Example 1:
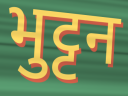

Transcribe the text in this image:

भुट्टन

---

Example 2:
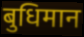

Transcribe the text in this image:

बुधिमान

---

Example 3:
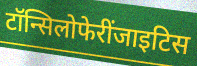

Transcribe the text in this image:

टॉन्सिलोफेरींजाइटिस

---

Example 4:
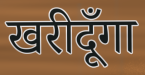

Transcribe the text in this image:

खरीदूँगा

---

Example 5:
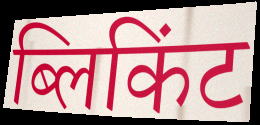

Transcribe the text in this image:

ब्लिकिंट